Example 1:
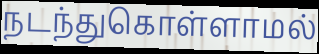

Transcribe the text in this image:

நடந்துகொள்ளாமல்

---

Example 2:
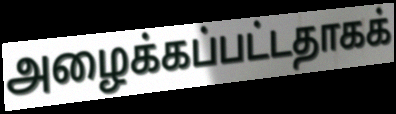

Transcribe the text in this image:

அழைக்கப்பட்டதாகக்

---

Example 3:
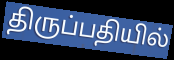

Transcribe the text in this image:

திருப்பதியில்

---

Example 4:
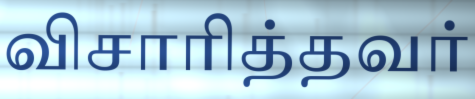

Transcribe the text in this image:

விசாரித்தவர்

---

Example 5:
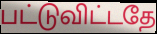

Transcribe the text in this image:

பட்டுவிட்டதே